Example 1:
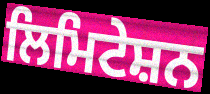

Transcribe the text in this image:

ਲਿਮਿਟੇਸ਼ਨ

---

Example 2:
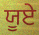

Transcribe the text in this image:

ਯੂਏ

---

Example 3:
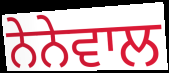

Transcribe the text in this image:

ਨੇਨੇਵਾਲ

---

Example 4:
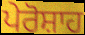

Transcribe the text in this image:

ਪੇਰੋਸ਼ਾਹ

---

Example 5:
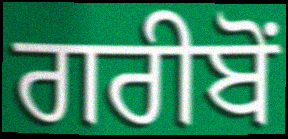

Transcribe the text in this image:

ਗਰੀਬੋਂ